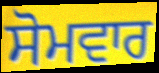
ਸੋਮਵਾਰ